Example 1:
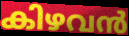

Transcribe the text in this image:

കിഴവൻ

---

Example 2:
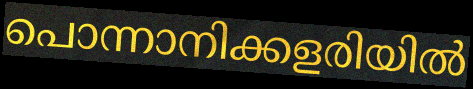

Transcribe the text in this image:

പൊന്നാനിക്കളരിയിൽ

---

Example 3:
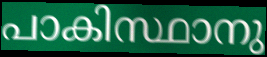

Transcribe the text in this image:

പാകിസ്ഥാനു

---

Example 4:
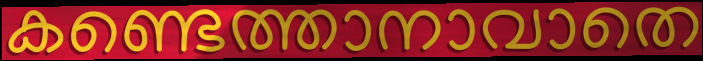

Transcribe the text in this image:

കണ്ടെത്താനാവാതെ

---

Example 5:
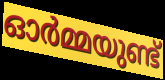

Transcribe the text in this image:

ഓർമ്മയുണ്ട്